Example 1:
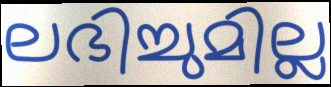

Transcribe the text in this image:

ലഭിച്ചുമില്ല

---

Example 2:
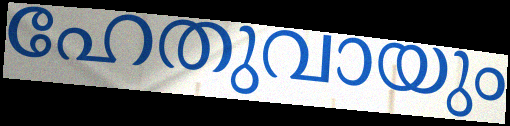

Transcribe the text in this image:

ഹേതുവായും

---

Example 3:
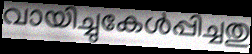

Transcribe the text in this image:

വായിച്ചുകേൾപ്പിച്ചതു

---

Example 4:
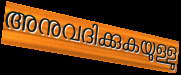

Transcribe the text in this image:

അനുവദിക്കുകയുള്ളു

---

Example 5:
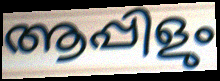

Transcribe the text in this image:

ആപ്പിളും